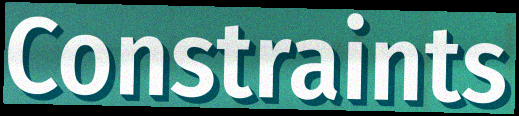
Constraints